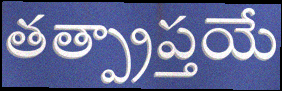
తత్ప్రాప్తయే